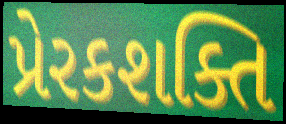
પ્રેરકશક્તિ